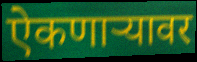
ऐकणार्‍यावर